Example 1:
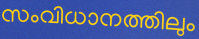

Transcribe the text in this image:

സംവിധാനത്തിലും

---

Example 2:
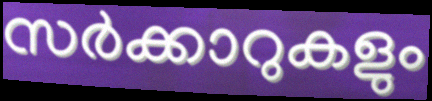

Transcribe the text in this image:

സർക്കാറുകളും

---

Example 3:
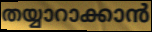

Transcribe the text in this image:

തയ്യാറാക്കാൻ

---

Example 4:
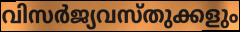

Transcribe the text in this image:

വിസർജ്യവസ്തുക്കളും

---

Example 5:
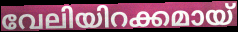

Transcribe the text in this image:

വേലിയിറക്കമായ്